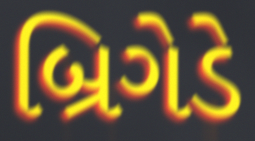
બ્રિગેડે